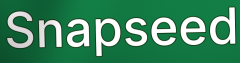
Snapseed